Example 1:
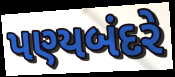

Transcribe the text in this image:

પણ્યબંદરે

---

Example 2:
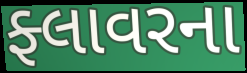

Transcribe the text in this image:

ફ્લાવરના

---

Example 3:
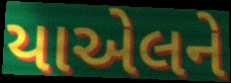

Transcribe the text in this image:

યાએલને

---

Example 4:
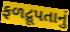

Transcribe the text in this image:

ફળદ્રૂપતાનું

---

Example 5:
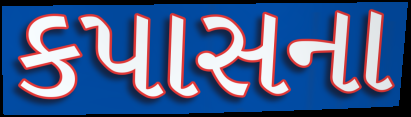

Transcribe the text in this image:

કપાસના